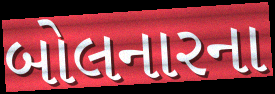
બોલનારના